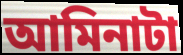
আমিনাটা